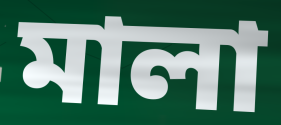
মালা